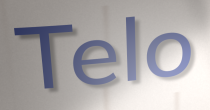
Telo